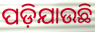
ପଡ଼ିଯାଉଛି